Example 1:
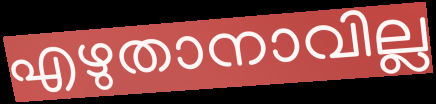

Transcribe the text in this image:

എഴുതാനാവില്ല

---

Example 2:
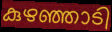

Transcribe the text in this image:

കുഴഞ്ഞാടി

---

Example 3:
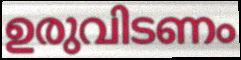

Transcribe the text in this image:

ഉരുവിടണം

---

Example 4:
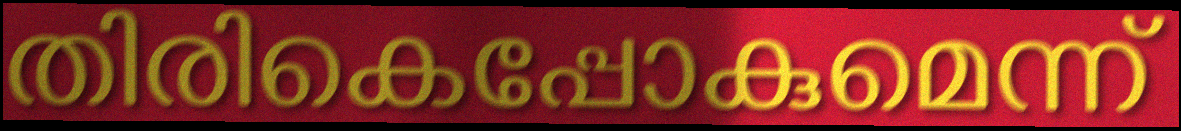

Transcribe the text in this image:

തിരികെപ്പോകുമെന്ന്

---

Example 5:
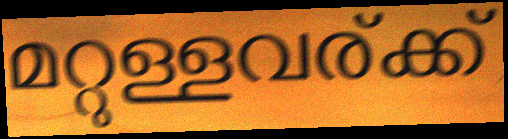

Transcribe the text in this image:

മറ്റുള്ളവര്ക്ക്